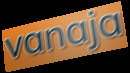
vanaja